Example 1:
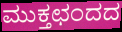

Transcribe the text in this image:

ಮುಕ್ತಛಂದದ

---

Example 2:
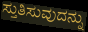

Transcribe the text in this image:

ಸ್ತುತಿಸುವುದನ್ನು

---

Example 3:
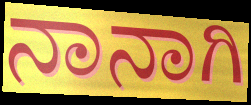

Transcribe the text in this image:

ನಾನಾಗಿ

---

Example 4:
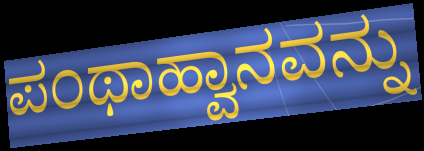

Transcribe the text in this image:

ಪಂಥಾಹ್ವಾನವನ್ನು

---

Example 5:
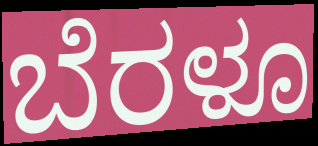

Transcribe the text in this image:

ಬೆರಳೂ